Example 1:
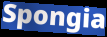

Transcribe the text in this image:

Spongia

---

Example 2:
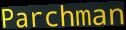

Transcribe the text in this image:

Parchman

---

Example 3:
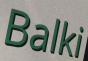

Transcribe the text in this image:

Balki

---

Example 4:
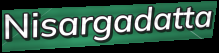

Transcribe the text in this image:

Nisargadatta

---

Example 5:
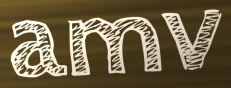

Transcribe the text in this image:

amv